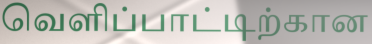
வெளிப்பாட்டிற்கான